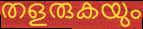
തളരുകയും